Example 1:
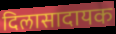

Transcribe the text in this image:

दिलासादायक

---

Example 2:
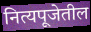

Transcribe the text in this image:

नित्यपूजेतील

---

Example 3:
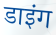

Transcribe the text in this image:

डाइंग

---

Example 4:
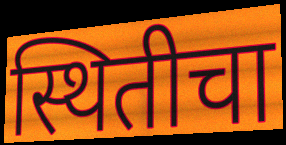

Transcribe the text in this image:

स्थितीचा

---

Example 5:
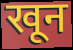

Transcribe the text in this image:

खून